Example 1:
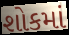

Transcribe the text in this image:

શોકમાં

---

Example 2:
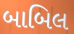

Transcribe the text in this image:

બાબિલ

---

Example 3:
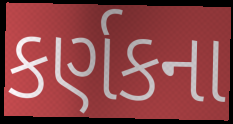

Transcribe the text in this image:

કર્ણકના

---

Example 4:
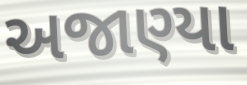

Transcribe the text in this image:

અજાણ્યા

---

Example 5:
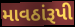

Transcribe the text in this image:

માવઠાંરૂપી